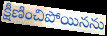
క్షీణించిపోయినను